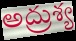
అద్రుశ్య